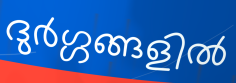
ദുർഗ്ഗങ്ങളിൽ